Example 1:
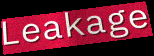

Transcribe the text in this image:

Leakage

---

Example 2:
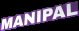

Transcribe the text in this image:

MANIPAL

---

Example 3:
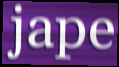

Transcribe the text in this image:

jape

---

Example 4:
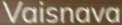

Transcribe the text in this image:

Vaisnava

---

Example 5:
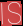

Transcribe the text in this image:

IS